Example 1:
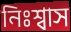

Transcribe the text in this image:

নিঃশ্বাস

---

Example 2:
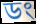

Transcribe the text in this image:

ডং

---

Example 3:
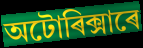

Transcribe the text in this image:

অটোৰিক্সাৰে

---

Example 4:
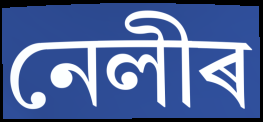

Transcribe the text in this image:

নেলীৰ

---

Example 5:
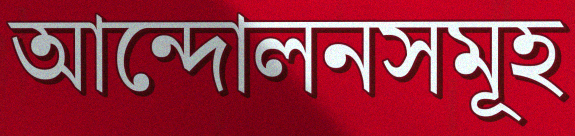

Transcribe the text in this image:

আন্দোলনসমূহ